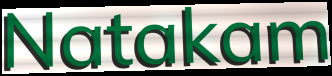
Natakam